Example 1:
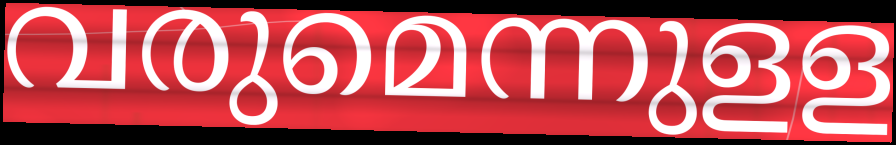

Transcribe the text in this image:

വരുമെന്നുളള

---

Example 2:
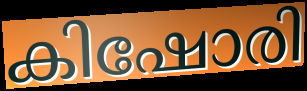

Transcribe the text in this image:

കിഷോരി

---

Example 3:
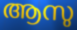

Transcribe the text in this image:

ആസു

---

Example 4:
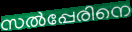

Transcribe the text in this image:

സൽപ്പേരിനെ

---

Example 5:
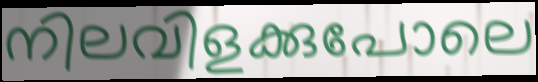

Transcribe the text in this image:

നിലവിളക്കുപോലെ